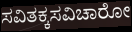
ಸವಿತಕ್ಕಸವಿಚಾರೋ